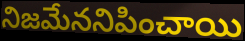
నిజమేననిపించాయి